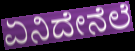
ಏನಿದೇನೆಲೆ